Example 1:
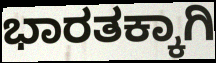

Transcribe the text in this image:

ಭಾರತಕ್ಕಾಗಿ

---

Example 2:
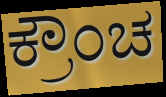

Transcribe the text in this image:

ಕ್ರೌಂಚ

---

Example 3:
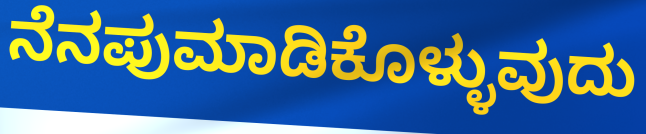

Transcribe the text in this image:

ನೆನಪುಮಾಡಿಕೊಳ್ಳುವುದು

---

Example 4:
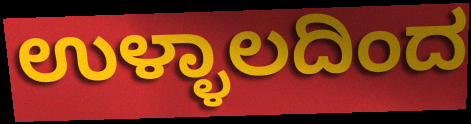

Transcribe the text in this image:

ಉಳ್ಳಾಲದಿಂದ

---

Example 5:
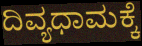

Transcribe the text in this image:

ದಿವ್ಯಧಾಮಕ್ಕೆ